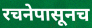
रचनेपासूनच